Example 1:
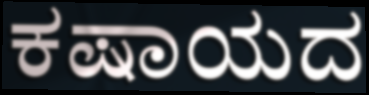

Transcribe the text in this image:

ಕಷಾಯದ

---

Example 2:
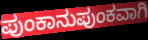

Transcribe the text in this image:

ಪುಂಕಾನುಪುಂಕವಾಗಿ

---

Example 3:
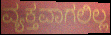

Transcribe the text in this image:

ವ್ಯಕ್ತವಾಗಲಿಲ್ಲ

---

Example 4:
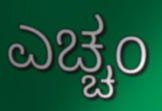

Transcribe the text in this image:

ಎಚ್ಚಂ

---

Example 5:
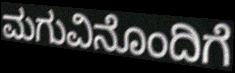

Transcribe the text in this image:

ಮಗುವಿನೊಂದಿಗೆ